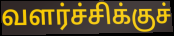
வளர்ச்சிக்குச்